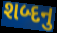
શબ્દનુ